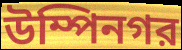
উম্পিনগর